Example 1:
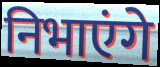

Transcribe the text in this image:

निभाएंगे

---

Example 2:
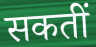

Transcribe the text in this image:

सकतीं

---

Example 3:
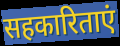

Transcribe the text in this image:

सहकारिताएं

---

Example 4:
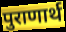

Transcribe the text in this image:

पुराणार्थ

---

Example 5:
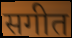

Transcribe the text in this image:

सगीत